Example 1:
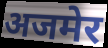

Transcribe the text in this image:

अजमेर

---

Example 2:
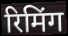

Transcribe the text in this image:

रिमिंग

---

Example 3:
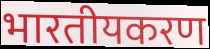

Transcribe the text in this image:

भारतीयकरण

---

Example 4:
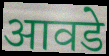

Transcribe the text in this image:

आवडे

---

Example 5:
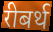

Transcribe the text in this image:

रीबर्थ